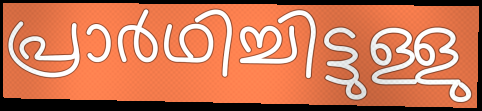
പ്രാർഥിച്ചിട്ടുള്ളു